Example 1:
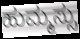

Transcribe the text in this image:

ಹುಮ್ಮಸ್ಸು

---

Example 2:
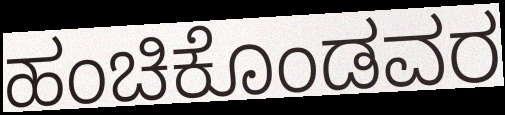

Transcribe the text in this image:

ಹಂಚಿಕೊಂಡವರ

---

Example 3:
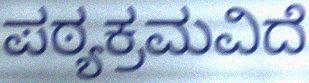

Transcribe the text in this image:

ಪಠ್ಯಕ್ರಮವಿದೆ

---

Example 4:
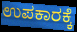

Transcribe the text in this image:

ಉಪಕಾರಕ್ಕೆ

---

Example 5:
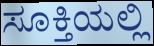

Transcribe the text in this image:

ಸೂಕ್ತಿಯಲ್ಲಿ